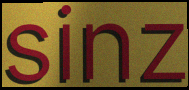
sinz